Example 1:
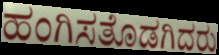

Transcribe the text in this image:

ಹಂಗಿಸತೊಡಗಿದರು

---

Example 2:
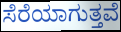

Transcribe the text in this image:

ಸೆರೆಯಾಗುತ್ತವೆ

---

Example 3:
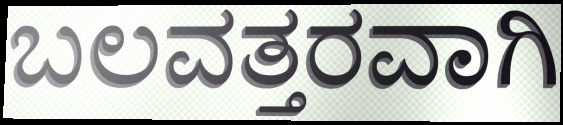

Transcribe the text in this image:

ಬಲವತ್ತರವಾಗಿ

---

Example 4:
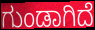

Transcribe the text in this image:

ಗುಂಡಾಗಿದೆ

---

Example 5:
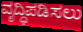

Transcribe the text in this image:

ವೃದ್ಧಿಪಡಿಸಲು